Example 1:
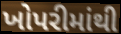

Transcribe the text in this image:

ખોપરીમાંથી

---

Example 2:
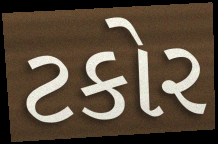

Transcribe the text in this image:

ટકોર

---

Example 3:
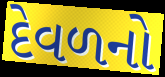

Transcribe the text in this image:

દેવળનો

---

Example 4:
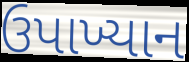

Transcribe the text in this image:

ઉપાખ્યાન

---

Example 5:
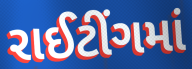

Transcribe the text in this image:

રાઈટીંગમાં